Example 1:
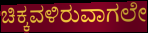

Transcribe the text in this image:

ಚಿಕ್ಕವಳಿರುವಾಗಲೇ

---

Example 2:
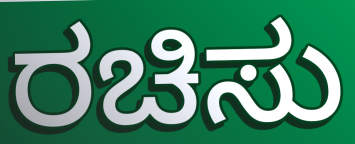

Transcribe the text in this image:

ರಚಿಸು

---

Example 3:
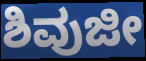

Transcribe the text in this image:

ಶಿವುಜೀ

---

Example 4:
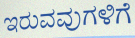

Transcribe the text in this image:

ಇರುವವುಗಳಿಗೆ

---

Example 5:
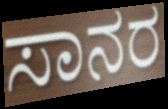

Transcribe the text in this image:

ಸಾನರ